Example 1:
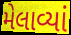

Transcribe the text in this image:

મેલાવ્યાં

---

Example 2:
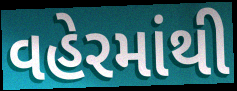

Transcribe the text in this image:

વહેરમાંથી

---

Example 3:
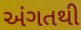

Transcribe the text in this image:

અંગતથી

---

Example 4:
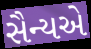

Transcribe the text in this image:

સૈન્યએ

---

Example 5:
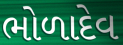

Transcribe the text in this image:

ભોળાદેવ